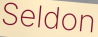
Seldon